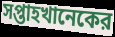
সপ্তাহখানেকের